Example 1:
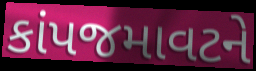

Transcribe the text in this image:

કાંપજમાવટને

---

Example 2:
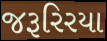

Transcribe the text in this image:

જરૂરિરયા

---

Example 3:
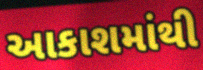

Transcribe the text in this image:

આકાશમાંથી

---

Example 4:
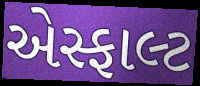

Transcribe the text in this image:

એસ્ફાલ્ટ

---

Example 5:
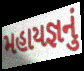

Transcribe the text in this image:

મહાયજ્ઞનું